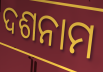
ଦଶନାମ